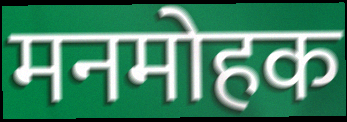
मनमोहक